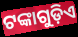
ଟଙ୍କାଗୁଡ଼ିଏ